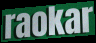
raokar